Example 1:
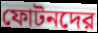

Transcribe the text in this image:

ফোটনদের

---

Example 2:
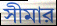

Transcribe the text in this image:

সীমার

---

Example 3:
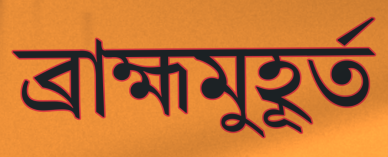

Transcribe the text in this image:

ব্রাহ্মমুহূর্ত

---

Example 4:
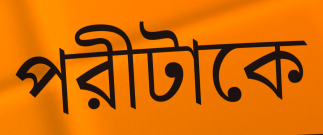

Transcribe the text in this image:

পরীটাকে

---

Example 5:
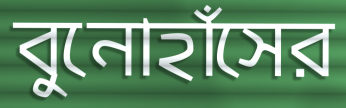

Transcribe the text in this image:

বুনোহাঁসের